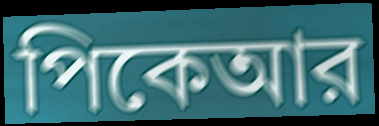
পিকেআর